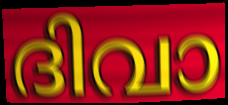
ദിവാ